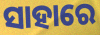
ସାହାରେ